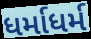
ધર્માધર્મ